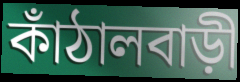
কাঁঠালবাড়ী